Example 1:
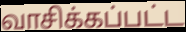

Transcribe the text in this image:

வாசிக்கப்பட்ட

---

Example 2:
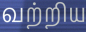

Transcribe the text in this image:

வற்றிய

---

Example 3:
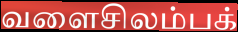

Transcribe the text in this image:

வளைசிலம்பக்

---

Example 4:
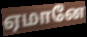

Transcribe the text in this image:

ஏமானே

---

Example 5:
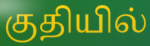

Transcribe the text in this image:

குதியில்